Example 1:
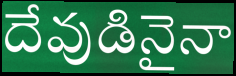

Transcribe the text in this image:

దేవుడినైనా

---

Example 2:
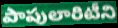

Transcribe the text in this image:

పాపులారిటీని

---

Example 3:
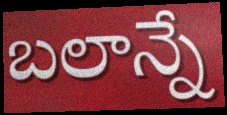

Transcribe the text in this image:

బలాన్నే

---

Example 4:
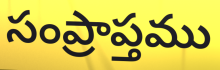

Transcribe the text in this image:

సంప్రాప్తము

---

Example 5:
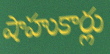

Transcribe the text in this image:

షాహుకార్లు